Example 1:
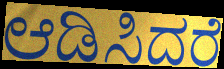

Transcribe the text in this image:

ಆಡಿಸಿದರೆ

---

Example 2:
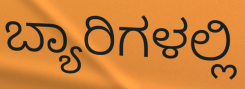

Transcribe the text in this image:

ಬ್ಯಾರಿಗಳಲ್ಲಿ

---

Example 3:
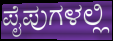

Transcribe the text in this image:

ಪೈಪುಗಳಲ್ಲಿ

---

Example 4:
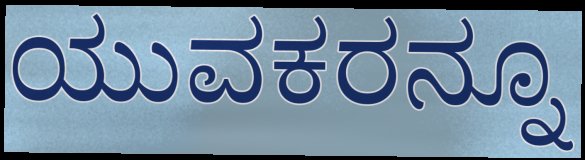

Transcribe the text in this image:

ಯುವಕರನ್ನೂ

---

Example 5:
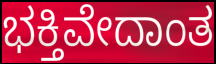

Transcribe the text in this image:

ಭಕ್ತಿವೇದಾಂತ